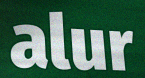
alur